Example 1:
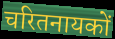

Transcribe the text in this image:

चरितनायकों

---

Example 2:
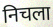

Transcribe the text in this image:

निचला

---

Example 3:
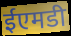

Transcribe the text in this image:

ईएमडी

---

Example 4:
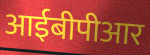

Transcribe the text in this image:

आईबीपीआर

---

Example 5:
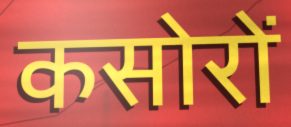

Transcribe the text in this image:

कसोरों